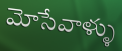
మోసేవాళ్ళు